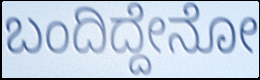
ಬಂದಿದ್ದೇನೋ